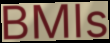
BMIs